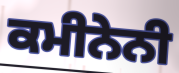
ਕਮੀਨੇਨੀ